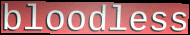
bloodless